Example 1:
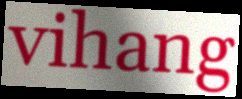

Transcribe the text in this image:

vihang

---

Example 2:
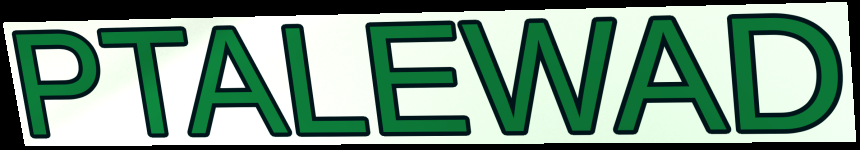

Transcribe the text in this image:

PTALEWAD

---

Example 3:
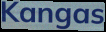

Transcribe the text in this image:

Kangas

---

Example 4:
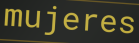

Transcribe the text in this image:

mujeres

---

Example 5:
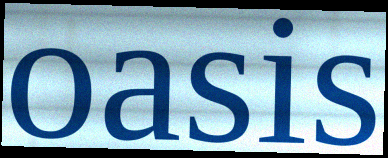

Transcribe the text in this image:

oasis